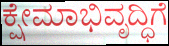
ಕ್ಷೇಮಾಭಿವೃದ್ಧಿಗೆ